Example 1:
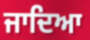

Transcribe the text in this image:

ਜਾਦਿਆ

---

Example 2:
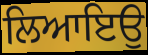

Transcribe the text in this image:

ਲਿਆਇਉ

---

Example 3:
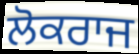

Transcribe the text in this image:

ਲੋਕਰਾਜ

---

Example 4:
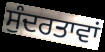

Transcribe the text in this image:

ਸੁੰਦਰਤਾਵਾਂ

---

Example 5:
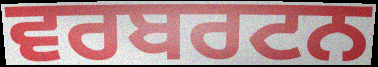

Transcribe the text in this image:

ਵਰਬਰਟਨ